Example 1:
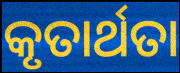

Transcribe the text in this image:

କୃତାର୍ଥତା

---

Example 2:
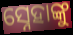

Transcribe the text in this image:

ସ୍ନେହାଙ୍କୁ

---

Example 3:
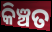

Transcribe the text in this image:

କିଞ୍ଚତ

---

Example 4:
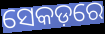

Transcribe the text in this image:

ସେକଡ଼ରେ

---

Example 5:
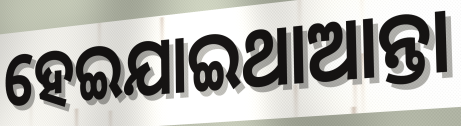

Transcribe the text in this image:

ହେଇଯାଇଥାଆନ୍ତା